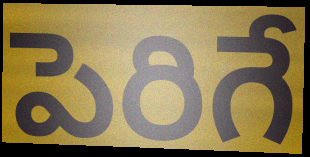
పెరిగే